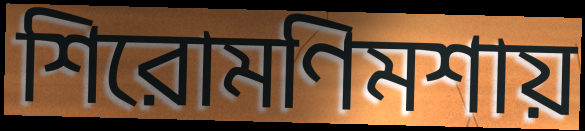
শিরোমণিমশায়